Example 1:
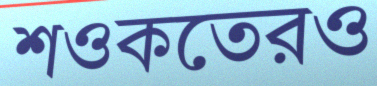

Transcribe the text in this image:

শওকতেরও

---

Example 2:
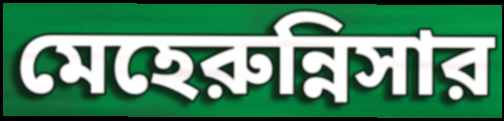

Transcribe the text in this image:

মেহেরুন্নিসার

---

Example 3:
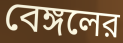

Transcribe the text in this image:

বেঙ্গলের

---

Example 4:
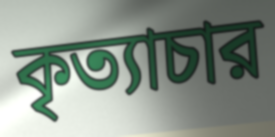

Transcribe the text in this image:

কৃত্যাচার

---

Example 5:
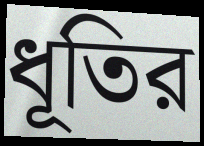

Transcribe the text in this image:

ধূতির